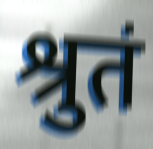
श्रुतं